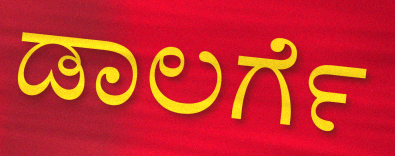
ಡಾಲರ್ಗೆ